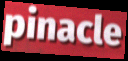
pinacle